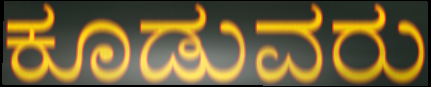
ಕೂಡುವರು